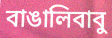
বাঙালিবাবু